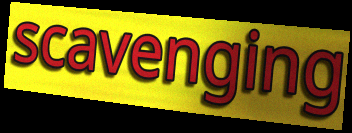
scavenging